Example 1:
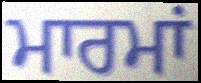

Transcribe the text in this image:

ਮਾਰਮਾਂ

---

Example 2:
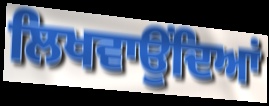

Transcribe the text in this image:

ਲਿਖਵਾਉਂਦਿਆਂ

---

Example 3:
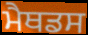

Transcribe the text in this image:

ਮੈਥਡਸ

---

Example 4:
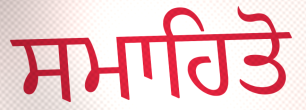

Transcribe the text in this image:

ਸਮਾਹਿਤੋ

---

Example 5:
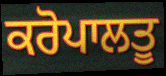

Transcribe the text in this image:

ਕਰੋਪਾਲਤੂ